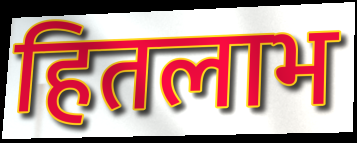
हितलाभ